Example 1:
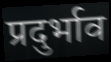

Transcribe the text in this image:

प्रदुर्भाव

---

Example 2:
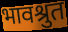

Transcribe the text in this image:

भावश्रुत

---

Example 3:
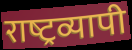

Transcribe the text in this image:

राष्ट्रव्यापी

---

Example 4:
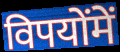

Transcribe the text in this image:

विपयोंमें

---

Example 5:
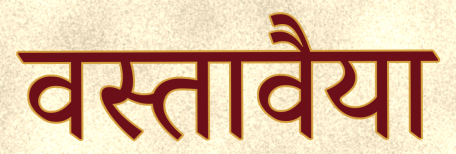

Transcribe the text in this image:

वस्तावैया